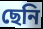
ছেনি